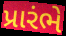
પ્રારંભે